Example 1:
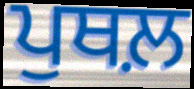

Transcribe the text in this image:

ਪੁਥਲ਼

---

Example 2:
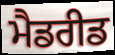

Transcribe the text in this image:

ਮੈਡਰੀਡ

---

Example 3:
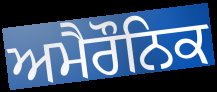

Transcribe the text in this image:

ਅਮੈਰੌਨਿਕ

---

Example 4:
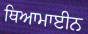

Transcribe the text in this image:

ਥਿਆਮਾਈਨ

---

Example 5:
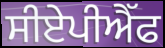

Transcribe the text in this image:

ਸੀਏਪੀਐੱਫ